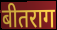
बीतराग